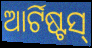
ଆର୍ଟିଷ୍ଟସ୍